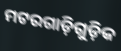
ମଟରଗାଡ଼ିଗୁଡ଼ିକ